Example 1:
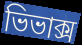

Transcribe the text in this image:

ভিভাক্স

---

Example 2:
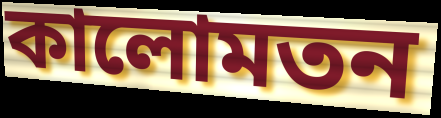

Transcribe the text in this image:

কালোমতন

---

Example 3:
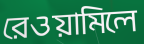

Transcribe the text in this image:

রেওয়ামিলে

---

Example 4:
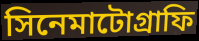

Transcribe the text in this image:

সিনেমাটোগ্রাফি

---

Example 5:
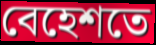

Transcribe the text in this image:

বেহেশতে